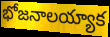
భోజనాలయ్యాక